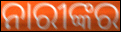
ନାରୀଙ୍କର